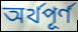
অৰ্থপূৰ্ণ